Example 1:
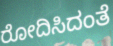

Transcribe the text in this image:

ರೋದಿಸಿದಂತೆ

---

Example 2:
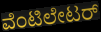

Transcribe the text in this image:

ವೆಂಟಿಲೇಟರ್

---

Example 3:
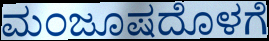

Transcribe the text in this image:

ಮಂಜೂಷದೊಳಗೆ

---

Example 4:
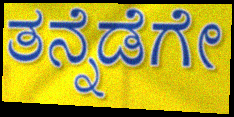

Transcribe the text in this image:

ತನ್ನೆಡೆಗೇ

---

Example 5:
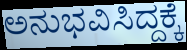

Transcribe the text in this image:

ಅನುಭವಿಸಿದ್ದಕ್ಕೆ